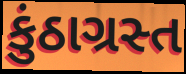
કુંઠાગ્રસ્ત